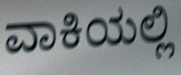
ವಾಕಿಯಲ್ಲಿ